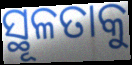
ସ୍ଥୂଳତାକୁ